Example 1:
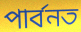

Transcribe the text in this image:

পাৰ্বনত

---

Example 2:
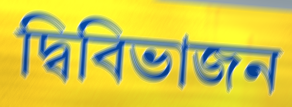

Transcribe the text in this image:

দ্বিবিভাজন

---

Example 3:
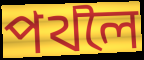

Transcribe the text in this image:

পথলৈ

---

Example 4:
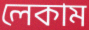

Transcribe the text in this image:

লেকাম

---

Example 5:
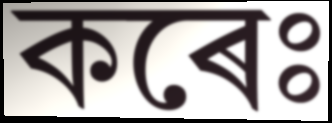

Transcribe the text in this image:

কৰেঃ